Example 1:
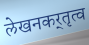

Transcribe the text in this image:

लेखनकर्तृत्व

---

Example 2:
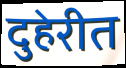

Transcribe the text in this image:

दुहेरीत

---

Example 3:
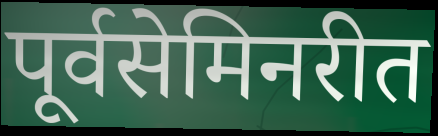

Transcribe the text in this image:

पूर्वसेमिनरीत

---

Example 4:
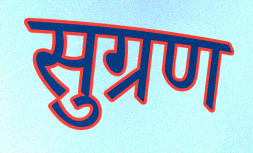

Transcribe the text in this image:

सुग्रण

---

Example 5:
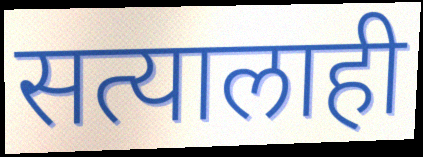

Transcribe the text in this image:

सत्यालाही